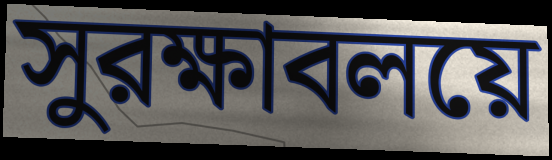
সুরক্ষাবলয়ে